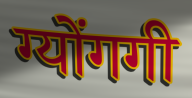
ग्योंगगी